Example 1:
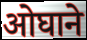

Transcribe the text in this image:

ओघाने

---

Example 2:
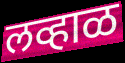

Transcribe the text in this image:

लव्हाळ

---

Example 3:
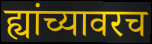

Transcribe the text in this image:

ह्यांच्यावरच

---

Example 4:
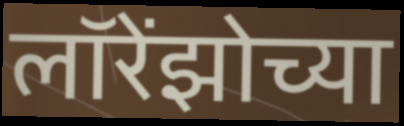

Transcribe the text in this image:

लॉरेंझोच्या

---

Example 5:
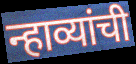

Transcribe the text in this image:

न्हाव्यांची